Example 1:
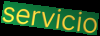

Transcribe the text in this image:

servicio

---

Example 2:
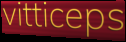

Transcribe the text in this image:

vitticeps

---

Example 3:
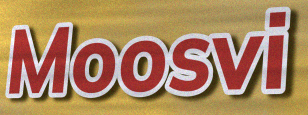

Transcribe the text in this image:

Moosvi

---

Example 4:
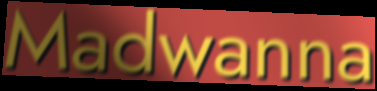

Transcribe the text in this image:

Madwanna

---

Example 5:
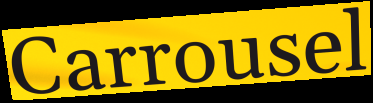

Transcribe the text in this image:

Carrousel